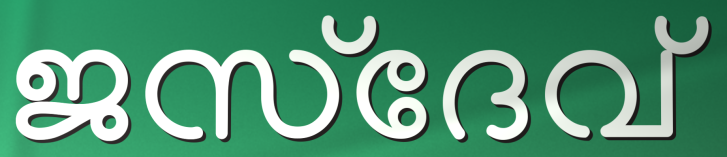
ജസ്ദേവ്